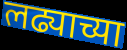
लढ्याच्या